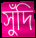
সুঁদি